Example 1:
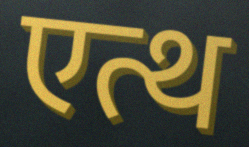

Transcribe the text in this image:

एत्थ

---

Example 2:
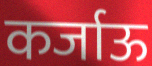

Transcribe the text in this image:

कर्जाऊ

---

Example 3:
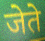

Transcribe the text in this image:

जेते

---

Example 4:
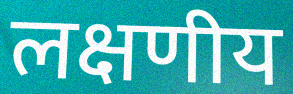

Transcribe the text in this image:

लक्षणीय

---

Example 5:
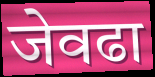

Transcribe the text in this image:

जेवढा